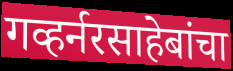
गव्हर्नरसाहेबांचा